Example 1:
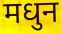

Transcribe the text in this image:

मधुन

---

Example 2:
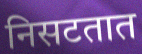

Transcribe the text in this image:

निसटतात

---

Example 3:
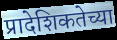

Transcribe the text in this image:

प्रादेशिकतेच्या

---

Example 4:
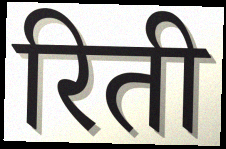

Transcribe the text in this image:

रिती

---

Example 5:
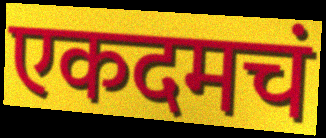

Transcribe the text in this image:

एकदमचं